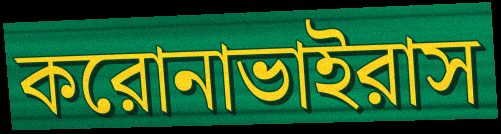
করোনাভাইরাস